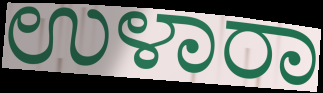
ಉಳಾರಾ